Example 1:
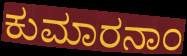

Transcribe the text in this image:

ಕುಮಾರನಾಂ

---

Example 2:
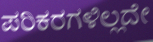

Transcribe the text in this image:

ಪರಿಕರಗಳಿಲ್ಲದೇ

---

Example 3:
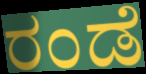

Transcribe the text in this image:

ರಂಡೆ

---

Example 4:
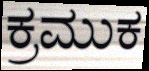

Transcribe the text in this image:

ಕ್ರಮುಕ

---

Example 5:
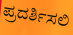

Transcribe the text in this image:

ಪ್ರದರ್ಶಿಸಲಿ